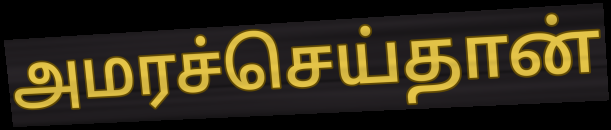
அமரச்செய்தான்